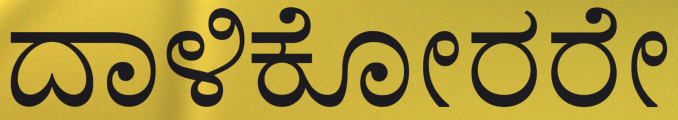
ದಾಳಿಕೋರರೇ